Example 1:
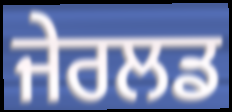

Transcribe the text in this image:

ਜੇਰਲਡ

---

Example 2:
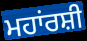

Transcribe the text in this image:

ਮਹਾਂਰਸ਼ੀ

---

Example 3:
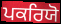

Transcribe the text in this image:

ਪਕਰਿਯੋ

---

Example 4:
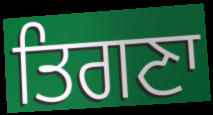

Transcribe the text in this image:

ਤਿਗਣਾ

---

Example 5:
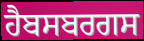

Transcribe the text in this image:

ਹੈਬਸਬਰਗਸ